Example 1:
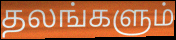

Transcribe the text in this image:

தலங்களும்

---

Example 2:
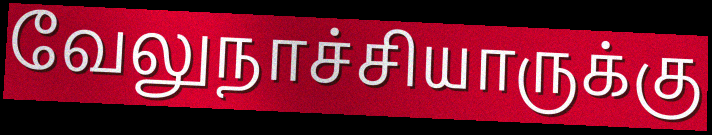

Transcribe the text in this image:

வேலுநாச்சியாருக்கு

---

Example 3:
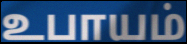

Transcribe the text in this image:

உபாயம்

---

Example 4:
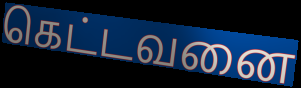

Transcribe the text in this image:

கெட்டவனை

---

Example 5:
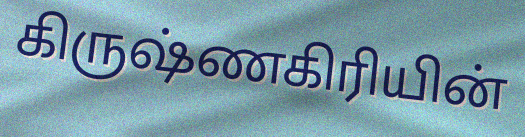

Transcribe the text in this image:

கிருஷ்ணகிரியின்